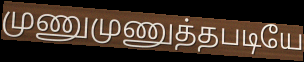
முணுமுணுத்தபடியே